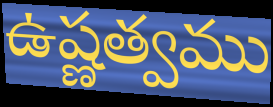
ఉష్ణత్వము